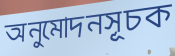
অনুমোদনসূচক